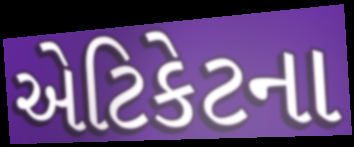
એટિકેટના